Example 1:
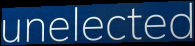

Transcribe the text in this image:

unelected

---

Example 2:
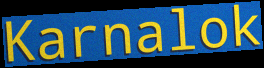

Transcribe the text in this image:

Karnalok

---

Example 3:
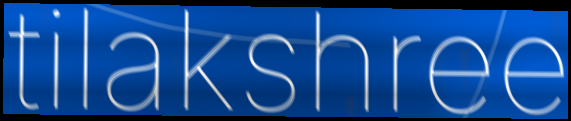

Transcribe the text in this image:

tilakshree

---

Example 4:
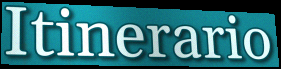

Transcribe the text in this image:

Itinerario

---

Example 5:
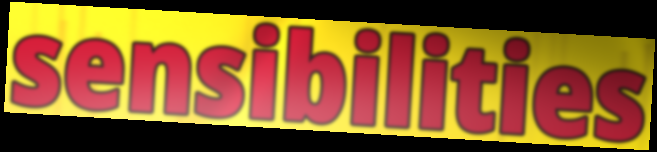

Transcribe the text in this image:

sensibilities